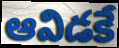
ఆవిడకే